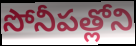
సోనీపత్లోని